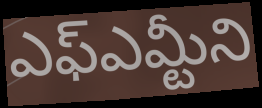
ఎఫ్ఎమ్టీని